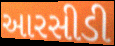
આરસીડી